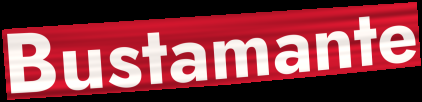
Bustamante